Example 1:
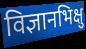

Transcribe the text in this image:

विज्ञानभिक्षु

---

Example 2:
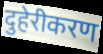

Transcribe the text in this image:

दुहेरीकरण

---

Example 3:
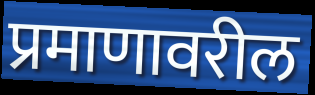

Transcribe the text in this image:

प्रमाणावरील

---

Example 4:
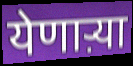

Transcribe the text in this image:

येणाऱ्‍या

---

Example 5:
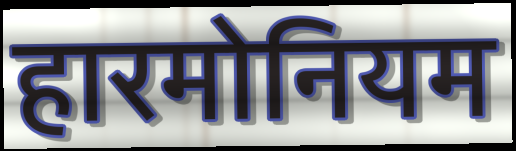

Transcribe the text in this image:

हारमोनियम